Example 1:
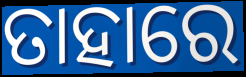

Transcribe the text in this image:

ତାହାରେ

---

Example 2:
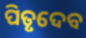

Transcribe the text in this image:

ପିତୃଦେବ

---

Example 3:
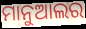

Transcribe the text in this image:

ମାନୁଆଲର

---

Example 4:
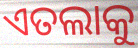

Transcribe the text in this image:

ଏତଲାକୁ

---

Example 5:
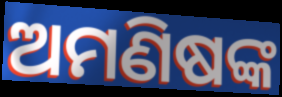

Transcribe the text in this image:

ଅମଣିଷଙ୍କ